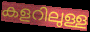
കളറിലുള്ള